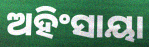
ଅହିଂସାୟା